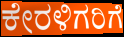
ಕೇರಳಿಗರಿಗೆ